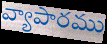
వ్యాపారము